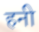
हनी